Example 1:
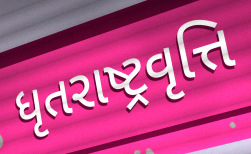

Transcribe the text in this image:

ધૃતરાષ્ટ્રવૃત્તિ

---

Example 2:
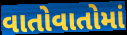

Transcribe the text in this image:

વાતોવાતોમાં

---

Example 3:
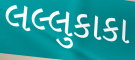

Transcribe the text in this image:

લલ્લુકાકા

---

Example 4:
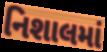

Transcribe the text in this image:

નિશાલમાં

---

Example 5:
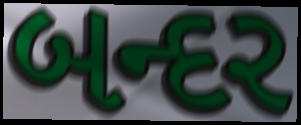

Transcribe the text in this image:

બન્દર